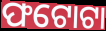
ଫଟୋଟା